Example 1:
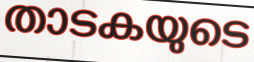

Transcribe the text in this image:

താടകയുടെ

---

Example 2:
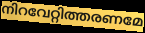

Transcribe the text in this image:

നിറവേറ്റിത്തരണമേ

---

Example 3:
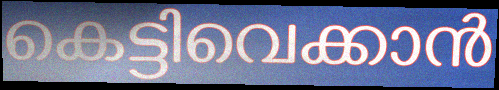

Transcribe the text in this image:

കെട്ടിവെക്കാൻ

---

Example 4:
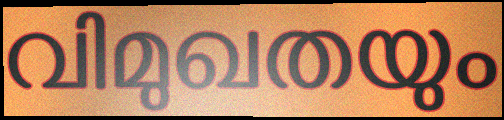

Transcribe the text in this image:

വിമുഖതയും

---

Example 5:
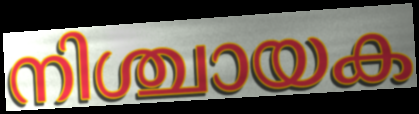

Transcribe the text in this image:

നിശ്ചായക